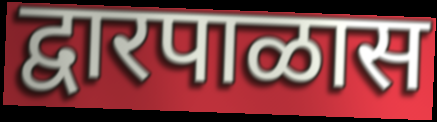
द्वारपाळास